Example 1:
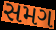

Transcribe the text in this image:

સમગ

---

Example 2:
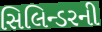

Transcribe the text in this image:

સિલિન્ડરની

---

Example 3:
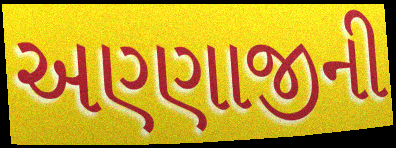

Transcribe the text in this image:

અણ્ણાજીની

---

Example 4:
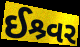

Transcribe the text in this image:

ઈશ્ર્વર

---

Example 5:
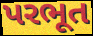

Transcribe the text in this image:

પરભૂત